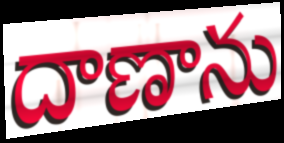
దాణాను